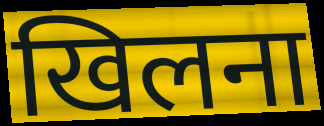
खिलना